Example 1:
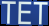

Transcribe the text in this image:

TET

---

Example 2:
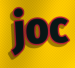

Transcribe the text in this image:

joc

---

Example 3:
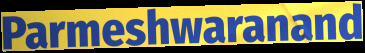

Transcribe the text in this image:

Parmeshwaranand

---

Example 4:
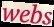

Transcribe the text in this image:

webs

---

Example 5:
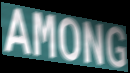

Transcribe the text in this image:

AMONG